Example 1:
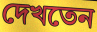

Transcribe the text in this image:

দেখতেন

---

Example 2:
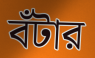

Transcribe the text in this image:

বঁটার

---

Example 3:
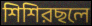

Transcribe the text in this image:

শিশিরছলে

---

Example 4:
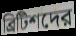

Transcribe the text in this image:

ব্রিটিশদের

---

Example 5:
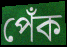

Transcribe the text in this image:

পেঁক